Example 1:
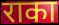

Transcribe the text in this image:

राका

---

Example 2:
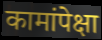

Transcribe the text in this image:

कामांपेक्षा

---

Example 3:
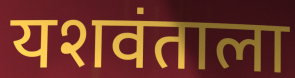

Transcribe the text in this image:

यशवंताला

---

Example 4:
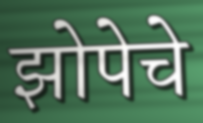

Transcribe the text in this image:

झोपेचे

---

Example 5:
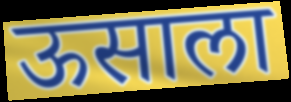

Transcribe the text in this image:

ऊसाला